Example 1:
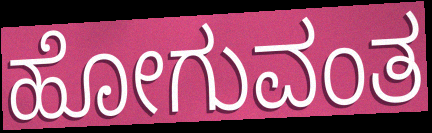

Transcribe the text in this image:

ಹೋಗುವಂತ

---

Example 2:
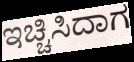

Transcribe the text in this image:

ಇಚ್ಚಿಸಿದಾಗ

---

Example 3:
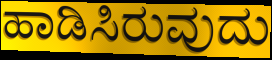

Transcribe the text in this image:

ಹಾಡಿಸಿರುವುದು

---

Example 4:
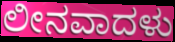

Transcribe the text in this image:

ಲೀನವಾದಳು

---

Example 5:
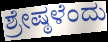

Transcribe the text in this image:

ಶ್ರೇಷ್ಠಳೆಂದು